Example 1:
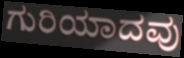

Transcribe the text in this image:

ಗುರಿಯಾದವು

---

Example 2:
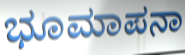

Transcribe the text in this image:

ಭೂಮಾಪನಾ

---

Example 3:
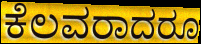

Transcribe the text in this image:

ಕೆಲವರಾದರೂ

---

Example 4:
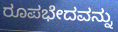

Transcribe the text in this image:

ರೂಪಭೇದವನ್ನು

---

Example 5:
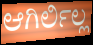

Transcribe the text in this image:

ಆಗಿರ್ಲಿಲ್ಲ